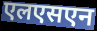
एलएसएन